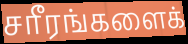
சரீரங்களைக்